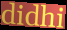
didhi